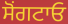
ਸੋਂਗਟਾਓ